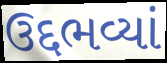
ઉદ્દભવ્યાં